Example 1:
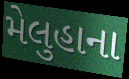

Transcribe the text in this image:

મેલુહાના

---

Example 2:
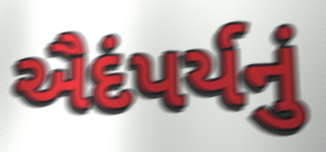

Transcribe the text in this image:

ઐદંપર્યનું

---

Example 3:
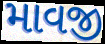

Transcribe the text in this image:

માવજી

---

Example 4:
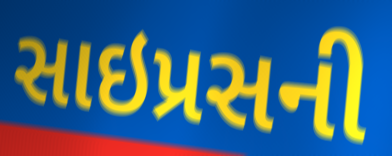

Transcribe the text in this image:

સાઇપ્રસની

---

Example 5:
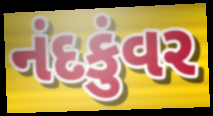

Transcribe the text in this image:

નંદકુંવર